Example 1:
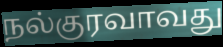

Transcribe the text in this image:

நல்குரவாவது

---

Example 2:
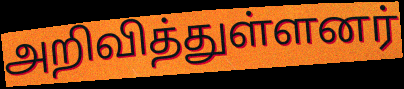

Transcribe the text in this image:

அறிவித்துள்ளனர்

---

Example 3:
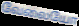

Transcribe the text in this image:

வேலையோ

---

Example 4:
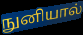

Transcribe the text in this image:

நுனியால்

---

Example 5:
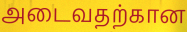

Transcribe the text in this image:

அடைவதற்கான